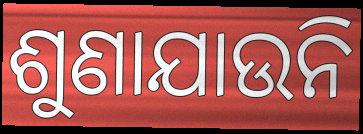
ଶୁଣାଯାଉନି